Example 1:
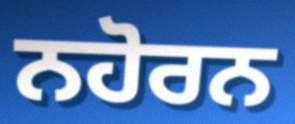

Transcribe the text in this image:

ਨਹੋਰਨ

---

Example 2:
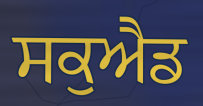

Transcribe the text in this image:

ਸਕੁਐਡ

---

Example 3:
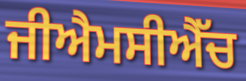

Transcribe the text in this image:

ਜੀਐਮਸੀਐੱਚ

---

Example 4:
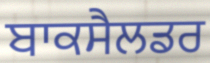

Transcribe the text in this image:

ਬਾਕਸੈਲਡਰ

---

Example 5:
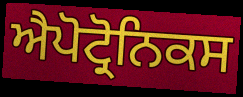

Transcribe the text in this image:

ਐਪੋਟ੍ਰੋਨਿਕਸ